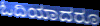
ಓದಿಯಾದರೂ